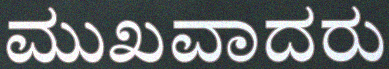
ಮುಖವಾದರು